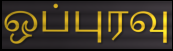
ஒப்புரவு